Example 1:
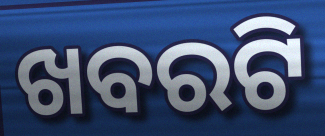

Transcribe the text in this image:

ଖବରଟି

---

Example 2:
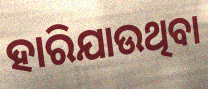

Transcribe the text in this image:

ହାରିଯାଉଥିବା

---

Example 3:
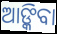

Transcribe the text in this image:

ଆଙ୍କିବା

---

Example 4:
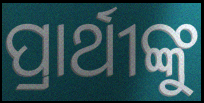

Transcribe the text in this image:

ପ୍ରାର୍ଥୀଙ୍କୁ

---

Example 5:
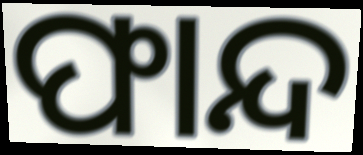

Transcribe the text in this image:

ଫାନ୍ଦ